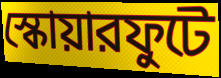
স্কোয়ারফুটে